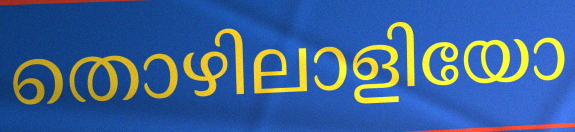
തൊഴിലാളിയോ